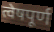
त्वेषपूर्ण